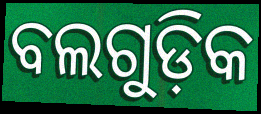
ବଲଗୁଡ଼ିକ